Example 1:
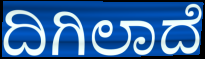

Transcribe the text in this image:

ದಿಗಿಲಾದೆ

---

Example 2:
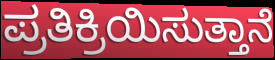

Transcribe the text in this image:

ಪ್ರತಿಕ್ರಿಯಿಸುತ್ತಾನೆ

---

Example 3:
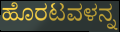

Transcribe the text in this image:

ಹೊರಟವಳನ್ನ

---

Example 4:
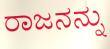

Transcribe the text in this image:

ರಾಜನನ್ನು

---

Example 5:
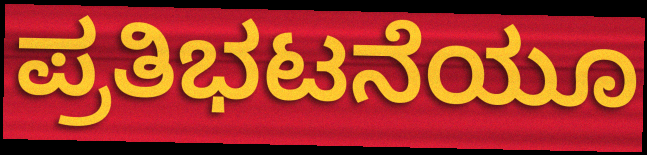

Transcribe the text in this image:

ಪ್ರತಿಭಟನೆಯೂ